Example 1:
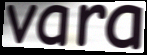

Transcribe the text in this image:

vara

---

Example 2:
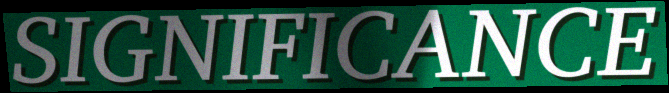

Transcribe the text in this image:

SIGNIFICANCE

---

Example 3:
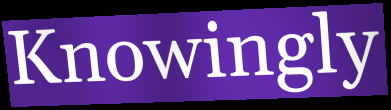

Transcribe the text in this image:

Knowingly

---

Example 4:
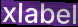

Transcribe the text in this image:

xlabel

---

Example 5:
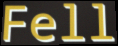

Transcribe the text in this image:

Fell